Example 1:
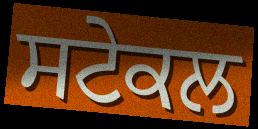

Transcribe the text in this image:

ਸਟੇਕਲ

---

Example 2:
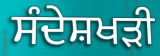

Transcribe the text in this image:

ਸੰਦੇਸ਼ਖੜੀ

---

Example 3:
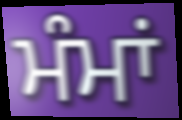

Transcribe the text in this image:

ਮੰਮਾਂ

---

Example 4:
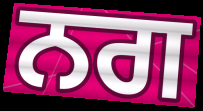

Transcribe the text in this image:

ਨਗ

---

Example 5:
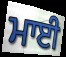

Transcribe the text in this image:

ਮਾਈ